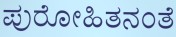
ಪುರೋಹಿತನಂತೆ